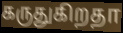
கருதுகிறதா